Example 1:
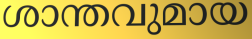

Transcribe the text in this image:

ശാന്തവുമായ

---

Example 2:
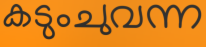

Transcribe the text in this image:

കടുംചുവന്ന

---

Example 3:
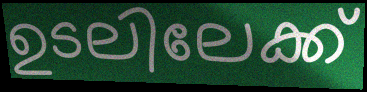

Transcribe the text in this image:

ഉടലിലേക്ക്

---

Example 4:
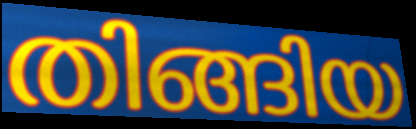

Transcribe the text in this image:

തിങ്ങിയ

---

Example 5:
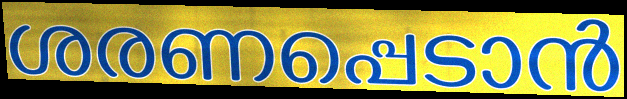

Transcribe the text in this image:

ശരണപ്പെടാൻ